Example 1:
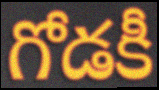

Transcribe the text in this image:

గోడకీ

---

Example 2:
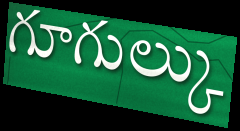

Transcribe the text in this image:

గూగుల్కు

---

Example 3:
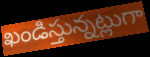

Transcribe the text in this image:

ఖండిస్తున్నట్లుగా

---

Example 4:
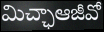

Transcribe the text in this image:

మిచ్ఛాఆజీవో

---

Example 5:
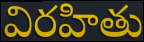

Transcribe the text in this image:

విరహితు